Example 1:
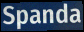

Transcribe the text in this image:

Spanda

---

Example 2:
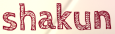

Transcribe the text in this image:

shakun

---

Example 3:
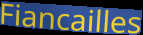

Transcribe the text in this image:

Fiancailles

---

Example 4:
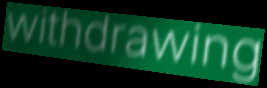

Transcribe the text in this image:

withdrawing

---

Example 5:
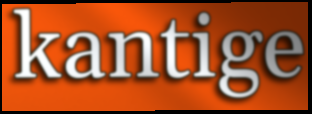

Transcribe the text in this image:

kantige